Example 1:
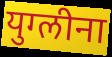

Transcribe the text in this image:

युग्लीना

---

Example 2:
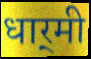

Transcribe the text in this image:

धार्मी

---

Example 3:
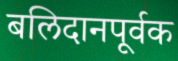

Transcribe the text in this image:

बलिदानपूर्वक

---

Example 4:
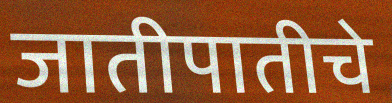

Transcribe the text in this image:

जातीपातीचे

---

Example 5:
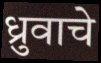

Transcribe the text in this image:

ध्रुवाचे